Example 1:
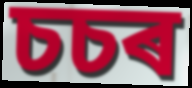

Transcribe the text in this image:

চচৰ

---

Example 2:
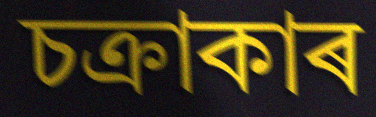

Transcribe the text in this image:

চক্ৰাকাৰ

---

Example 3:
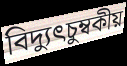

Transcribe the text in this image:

বিদ্যুৎচুম্বকীয়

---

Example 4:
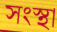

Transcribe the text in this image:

সংস্থা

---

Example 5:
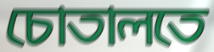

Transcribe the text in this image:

চোতালতে